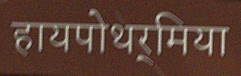
हायपोथर्मिया